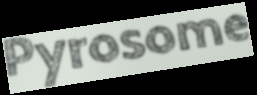
Pyrosome